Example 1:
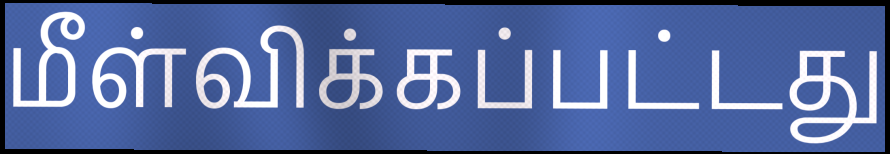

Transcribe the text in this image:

மீள்விக்கப்பட்டது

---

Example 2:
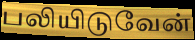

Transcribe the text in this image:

பலியிடுவேன்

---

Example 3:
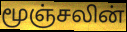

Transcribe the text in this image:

மூஞ்சலின்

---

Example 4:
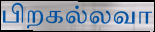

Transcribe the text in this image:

பிறகல்லவா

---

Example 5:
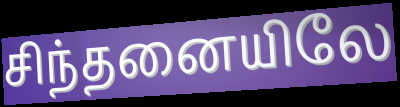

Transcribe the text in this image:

சிந்தனையிலே